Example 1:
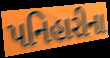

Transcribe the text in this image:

પનિહારીના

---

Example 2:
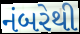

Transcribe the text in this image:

નંબરેથી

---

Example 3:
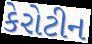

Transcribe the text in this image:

કેરોટીન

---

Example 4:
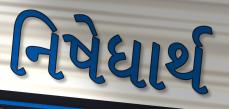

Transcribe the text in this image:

નિષેધાર્થ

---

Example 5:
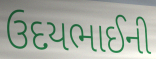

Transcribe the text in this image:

ઉદયભાઈની